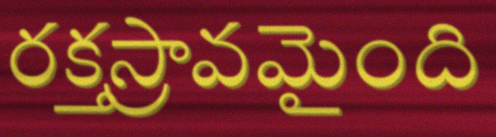
రక్తస్రావమైంది